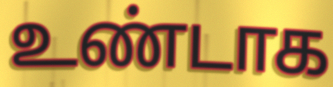
உண்டாக